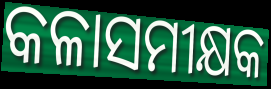
କଳାସମୀକ୍ଷକ